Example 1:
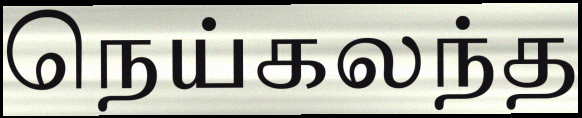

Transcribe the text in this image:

நெய்கலந்த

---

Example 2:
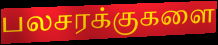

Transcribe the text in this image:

பலசரக்குகளை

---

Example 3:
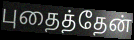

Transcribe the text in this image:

புதைத்தேன்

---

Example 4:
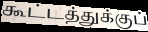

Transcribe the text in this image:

கூட்டத்துக்குப்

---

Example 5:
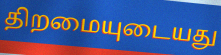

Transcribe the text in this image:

திறமையுடையது